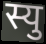
स्यु